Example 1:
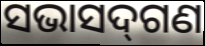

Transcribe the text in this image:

ସଭାସଦ୍‍ଗଣ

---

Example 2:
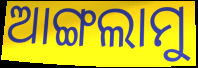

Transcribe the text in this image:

ଆଙ୍ଗଲାମୁ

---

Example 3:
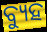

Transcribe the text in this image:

ବ୍ୟୁହ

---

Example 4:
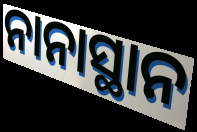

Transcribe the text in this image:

ନାନାସ୍ଥାନ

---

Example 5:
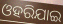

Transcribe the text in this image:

ଓହରିଯାଇ